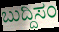
ಬುದ್ದಿಸಂ